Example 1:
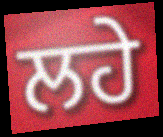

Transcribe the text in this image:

ਲਹੇ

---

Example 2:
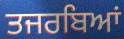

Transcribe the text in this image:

ਤਜਰਬਿਆਂ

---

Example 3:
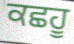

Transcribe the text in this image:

ਕਛਹੂ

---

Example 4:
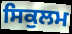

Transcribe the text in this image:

ਸਿਕੁਲਮ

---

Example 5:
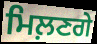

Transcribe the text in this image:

ਮਿਲ਼ਣਗੇ